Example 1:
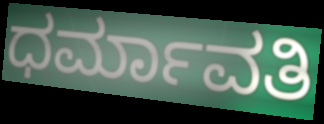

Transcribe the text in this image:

ಧರ್ಮಾವತಿ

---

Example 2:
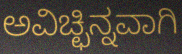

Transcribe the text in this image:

ಅವಿಚ್ಛಿನ್ನವಾಗಿ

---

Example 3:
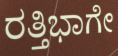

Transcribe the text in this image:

ರತ್ತಿಭಾಗೇ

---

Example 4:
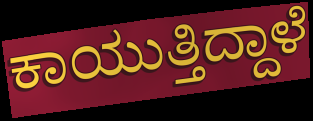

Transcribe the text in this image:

ಕಾಯುತ್ತಿದ್ದಾಳೆ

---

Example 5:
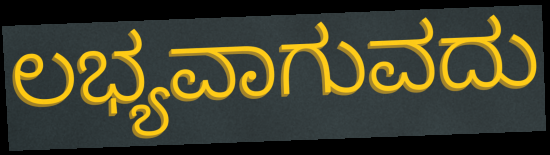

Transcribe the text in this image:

ಲಭ್ಯವಾಗುವದು